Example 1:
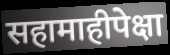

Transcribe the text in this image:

सहामाहीपेक्षा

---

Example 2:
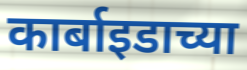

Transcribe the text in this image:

कार्बाइडाच्या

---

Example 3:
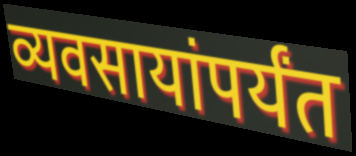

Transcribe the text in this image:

व्यवसायांपर्यंत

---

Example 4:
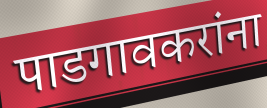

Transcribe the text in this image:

पाडगावकरांना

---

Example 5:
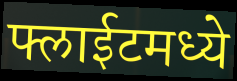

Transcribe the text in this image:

फ्लाईटमध्ये